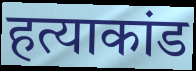
हत्याकांड